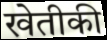
खेतीकी